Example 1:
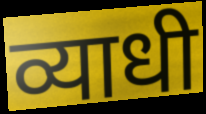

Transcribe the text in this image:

व्याधी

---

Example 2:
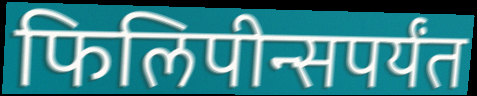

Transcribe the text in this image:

फिलिपीन्सपर्यंत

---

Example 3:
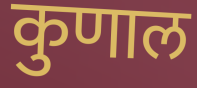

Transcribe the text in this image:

कुणाल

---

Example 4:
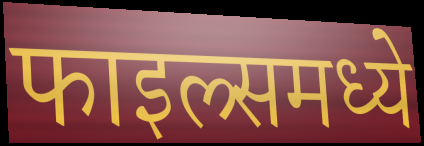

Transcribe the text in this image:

फाइल्समध्ये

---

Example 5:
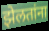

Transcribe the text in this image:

झेलतांना